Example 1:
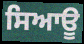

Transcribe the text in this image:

ਸਿਆਊ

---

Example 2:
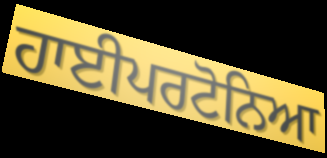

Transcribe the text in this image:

ਹਾਈਪਰਟੋਨਿਆ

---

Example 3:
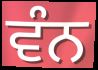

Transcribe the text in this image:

ਵੰਨ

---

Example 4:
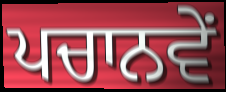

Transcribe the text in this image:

ਪਚਾਨਵੇਂ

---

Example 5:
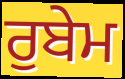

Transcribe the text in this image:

ਰੁਬੇਮ